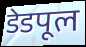
डेडपूल